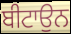
ਬੀਟਾਉਨ